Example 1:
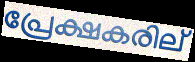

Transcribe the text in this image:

പ്രേക്ഷകരില്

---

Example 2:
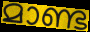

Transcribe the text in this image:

മാണ്ട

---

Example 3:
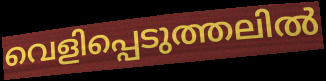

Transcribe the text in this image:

വെളിപ്പെടുത്തലിൽ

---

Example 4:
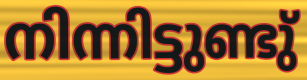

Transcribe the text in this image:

നിന്നിട്ടുണ്ടു്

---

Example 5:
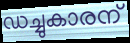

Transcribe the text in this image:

ഡച്ചുകാരന്